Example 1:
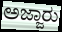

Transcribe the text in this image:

ಅಜ್ಜಾರು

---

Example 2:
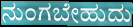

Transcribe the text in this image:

ನುಂಗಬೇಹುದು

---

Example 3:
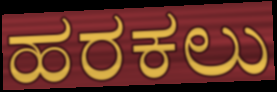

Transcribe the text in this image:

ಹರಕಲು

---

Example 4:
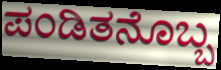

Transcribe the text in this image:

ಪಂಡಿತನೊಬ್ಬ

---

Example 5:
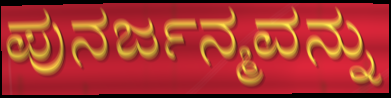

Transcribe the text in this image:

ಪುನರ್ಜನ್ಮವನ್ನು